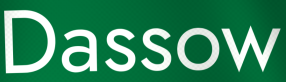
Dassow